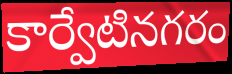
కార్వేటినగరం